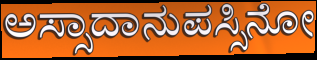
ಅಸ್ಸಾದಾನುಪಸ್ಸಿನೋ